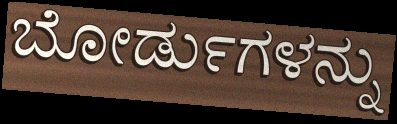
ಬೋರ್ಡುಗಳನ್ನು